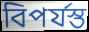
বিপর্যস্ত